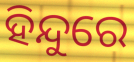
ହିନ୍ଦୁରେ